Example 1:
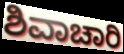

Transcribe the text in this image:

ಶಿವಾಚಾರಿ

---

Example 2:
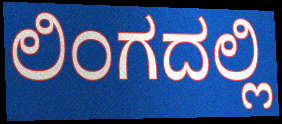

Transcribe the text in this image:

ಲಿಂಗದಲ್ಲಿ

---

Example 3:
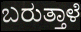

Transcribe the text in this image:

ಬರುತ್ತಾಳೆ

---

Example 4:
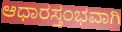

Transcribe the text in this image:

ಆಧಾರಸ್ತಂಭವಾಗಿ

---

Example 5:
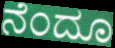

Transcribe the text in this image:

ನೆಂದೂ